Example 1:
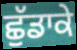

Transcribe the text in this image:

ਛੁੱਡਾਕੇ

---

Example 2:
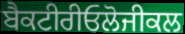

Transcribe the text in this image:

ਬੈਕਟੀਰੀਓਲੋਜੀਕਲ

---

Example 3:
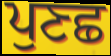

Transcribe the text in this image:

ਪੁਣਛ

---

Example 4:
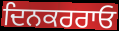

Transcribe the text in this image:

ਦਿਨਕਰਰਾਓ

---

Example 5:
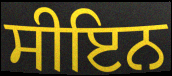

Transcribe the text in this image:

ਸੀਇਨ